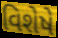
વિશેષે